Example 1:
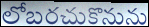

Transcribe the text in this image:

లోబరచుకొనును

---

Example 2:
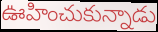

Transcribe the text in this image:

ఊహించుకున్నాడు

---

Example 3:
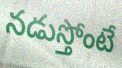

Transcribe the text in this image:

నడుస్తోంటే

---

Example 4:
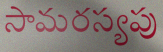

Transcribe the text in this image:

సామరస్యపు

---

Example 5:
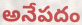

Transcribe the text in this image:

అనేపదం